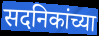
सदनिकांच्या